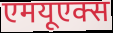
एमयूएक्स